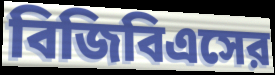
বিজিবিএসের